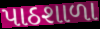
પાઠશાળા